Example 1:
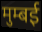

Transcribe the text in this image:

मुम्बई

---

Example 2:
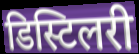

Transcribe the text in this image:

डिस्टिलरी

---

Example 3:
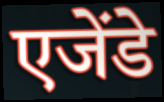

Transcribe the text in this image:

एजेंडे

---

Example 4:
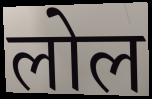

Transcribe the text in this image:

लोल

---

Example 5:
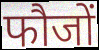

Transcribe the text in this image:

फौजों